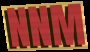
NNM